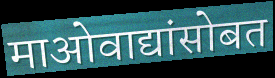
माओवाद्यांसोबत